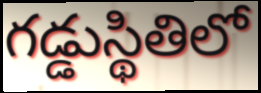
గడ్డుస్థితిలో